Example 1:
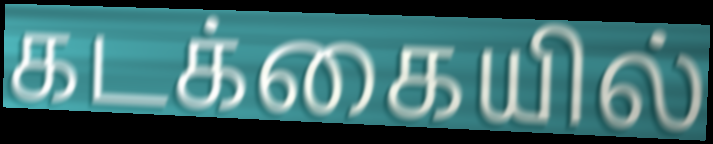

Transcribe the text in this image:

கடக்கையில்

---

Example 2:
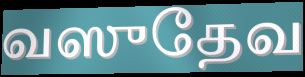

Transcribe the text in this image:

வஸுதேவ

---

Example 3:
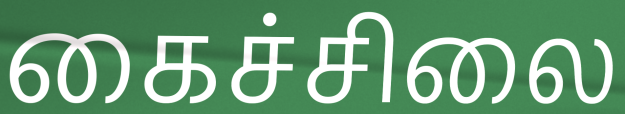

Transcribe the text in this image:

கைச்சிலை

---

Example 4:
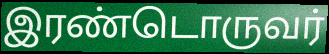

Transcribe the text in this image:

இரண்டொருவர்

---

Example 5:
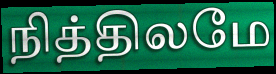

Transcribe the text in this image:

நித்திலமே